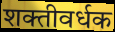
शक्तीवर्धक